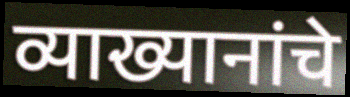
व्याख्यानांचे